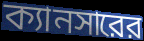
ক্যানসারের